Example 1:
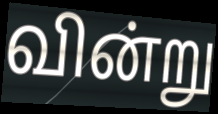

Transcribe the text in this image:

வின்று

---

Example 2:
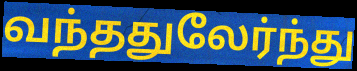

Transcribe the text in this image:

வந்ததுலேர்ந்து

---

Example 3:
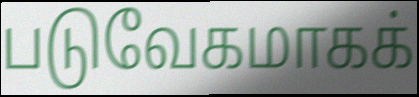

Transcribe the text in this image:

படுவேகமாகக்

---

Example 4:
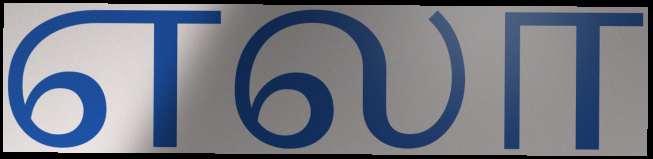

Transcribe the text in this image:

எலா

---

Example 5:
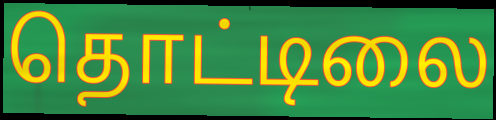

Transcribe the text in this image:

தொட்டிலை